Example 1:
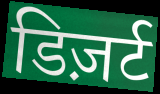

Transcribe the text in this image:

डिज़र्ट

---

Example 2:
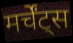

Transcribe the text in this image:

मर्चेंट्स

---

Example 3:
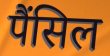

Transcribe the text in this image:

पैंसिल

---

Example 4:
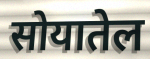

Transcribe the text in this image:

सोयातेल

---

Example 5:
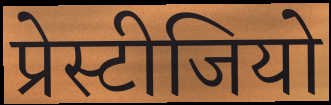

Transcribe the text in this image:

प्रेस्टीजियो